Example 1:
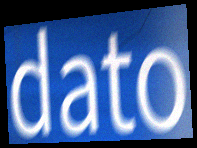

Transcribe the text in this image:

dato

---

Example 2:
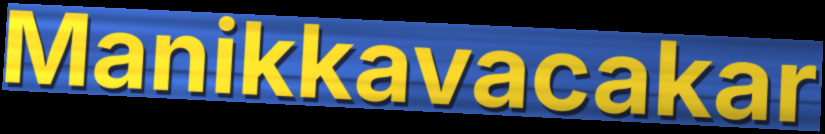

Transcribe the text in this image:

Manikkavacakar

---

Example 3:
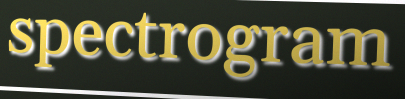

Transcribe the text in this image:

spectrogram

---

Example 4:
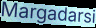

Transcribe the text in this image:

Margadarsi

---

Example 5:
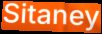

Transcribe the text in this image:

Sitaney